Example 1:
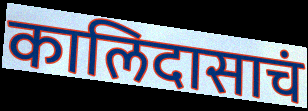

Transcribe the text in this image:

कालिदासाचं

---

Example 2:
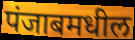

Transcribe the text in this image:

पंजाबमधील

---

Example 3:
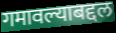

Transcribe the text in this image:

गमावल्याबद्दल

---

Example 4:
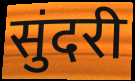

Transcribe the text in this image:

सुंदरी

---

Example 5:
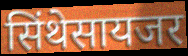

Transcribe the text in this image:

सिंथेसायजर